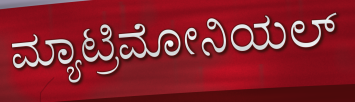
ಮ್ಯಾಟ್ರಿಮೋನಿಯಲ್